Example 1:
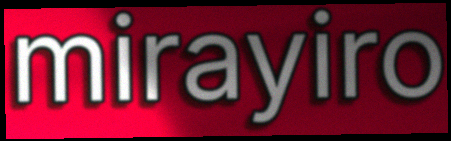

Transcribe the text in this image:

mirayiro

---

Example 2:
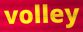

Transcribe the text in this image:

volley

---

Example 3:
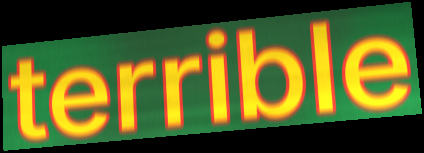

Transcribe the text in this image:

terrible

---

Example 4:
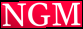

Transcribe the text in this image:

NGM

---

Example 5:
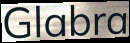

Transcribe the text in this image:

Glabra